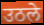
उठले